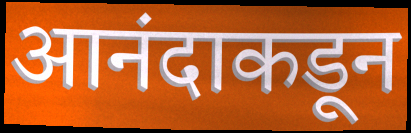
आनंदाकडून